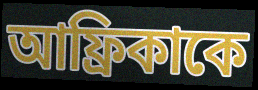
আফ্রিকাকে